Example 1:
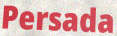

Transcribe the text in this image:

Persada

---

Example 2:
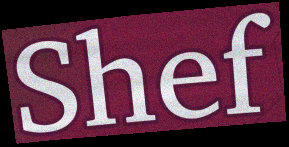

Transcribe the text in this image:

Shef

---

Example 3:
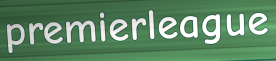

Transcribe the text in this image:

premierleague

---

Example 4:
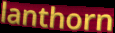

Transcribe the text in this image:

lanthorn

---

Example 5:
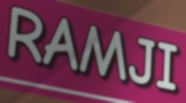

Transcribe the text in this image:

RAMJI